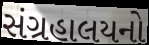
સંગ્રહાલયનો